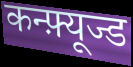
कन्फ़्यूज्ड